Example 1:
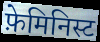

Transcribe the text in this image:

फ़ेमिनिस्ट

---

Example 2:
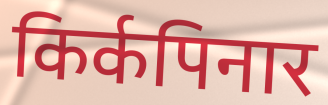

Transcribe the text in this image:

किर्कपिनार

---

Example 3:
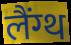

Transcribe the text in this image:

लैंग्थ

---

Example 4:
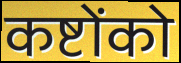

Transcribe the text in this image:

कष्टोंको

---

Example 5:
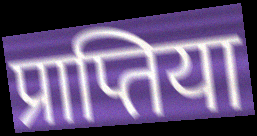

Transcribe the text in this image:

प्राप्तिया